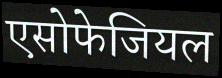
एसोफेजियल